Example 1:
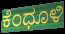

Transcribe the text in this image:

ಕೆಂಧೂಳಿ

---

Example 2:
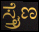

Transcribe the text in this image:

ಸ್ತ್ರೈಣ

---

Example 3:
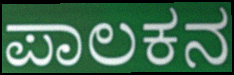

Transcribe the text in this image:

ಪಾಲಕನ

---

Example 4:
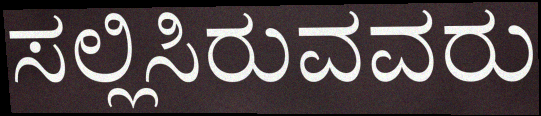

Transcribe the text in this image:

ಸಲ್ಲಿಸಿರುವವರು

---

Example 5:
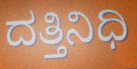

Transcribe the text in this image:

ದತ್ತಿನಿಧಿ